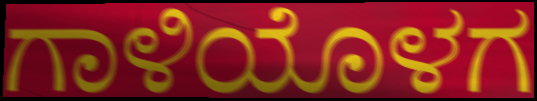
ಗಾಳಿಯೊಳಗ